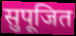
सुपूजित